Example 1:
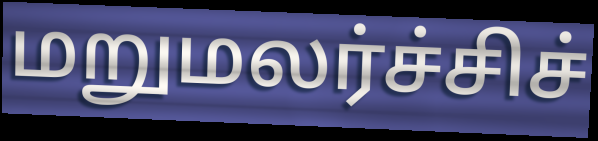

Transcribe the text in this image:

மறுமலர்ச்சிச்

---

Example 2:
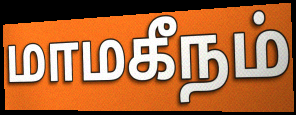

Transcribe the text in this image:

மாமகீநம்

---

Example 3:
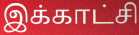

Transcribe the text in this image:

இக்காட்சி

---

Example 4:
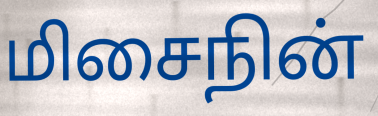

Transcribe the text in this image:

மிசைநின்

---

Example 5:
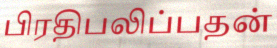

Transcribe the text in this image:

பிரதிபலிப்பதன்